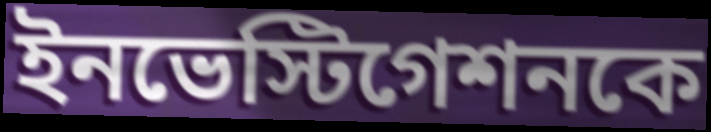
ইনভেস্টিগেশনকে